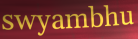
swyambhu